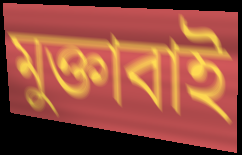
মুক্তাবাই